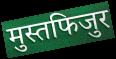
मुस्तफिजुर